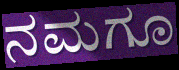
ನಮಗೂ